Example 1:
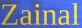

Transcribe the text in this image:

Zainal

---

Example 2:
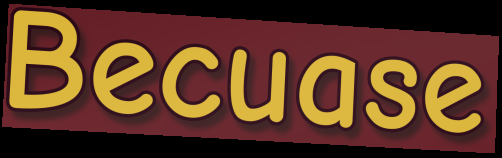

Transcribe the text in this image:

Becuase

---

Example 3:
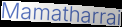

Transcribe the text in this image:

Mamatharrai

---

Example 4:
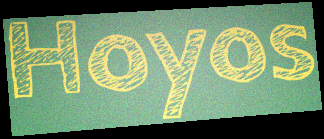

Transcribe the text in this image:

Hoyos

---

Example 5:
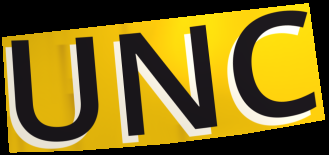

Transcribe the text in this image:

UNC